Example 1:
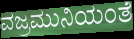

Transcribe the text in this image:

ವಜ್ರಮುನಿಯಂತೆ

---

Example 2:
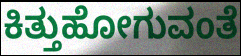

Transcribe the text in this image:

ಕಿತ್ತುಹೋಗುವಂತೆ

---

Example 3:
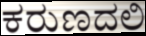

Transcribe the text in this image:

ಕರುಣದಲಿ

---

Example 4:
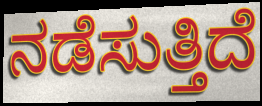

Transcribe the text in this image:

ನಡೆಸುತ್ತಿದೆ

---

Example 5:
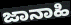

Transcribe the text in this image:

ಜಾನಾಹಿ